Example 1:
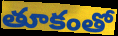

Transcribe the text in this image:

తూకంతో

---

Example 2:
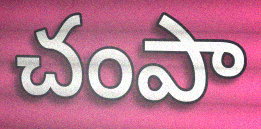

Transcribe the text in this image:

చంపా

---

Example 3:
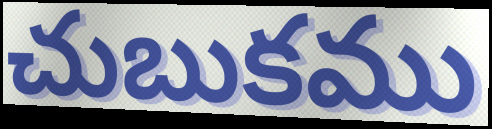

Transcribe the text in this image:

చుబుకము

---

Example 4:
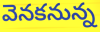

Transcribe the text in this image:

వెనకనున్న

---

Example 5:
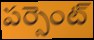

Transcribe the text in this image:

పర్సెంట్